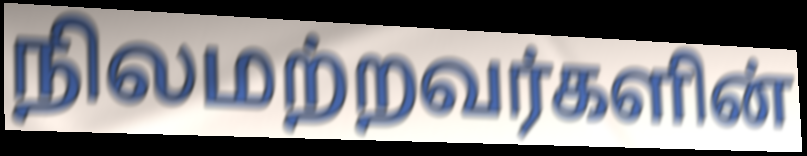
நிலமற்றவர்களின்